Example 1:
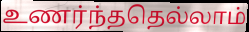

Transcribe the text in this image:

உணர்ந்ததெல்லாம்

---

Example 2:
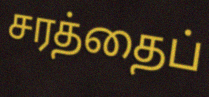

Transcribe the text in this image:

சரத்தைப்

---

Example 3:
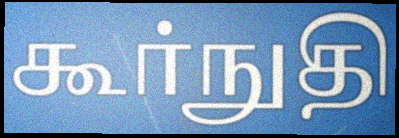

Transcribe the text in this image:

கூர்நுதி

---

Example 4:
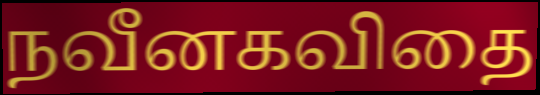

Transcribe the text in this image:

நவீனகவிதை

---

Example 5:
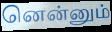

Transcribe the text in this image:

னென்னும்